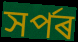
সৰ্পৰ